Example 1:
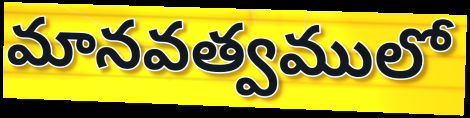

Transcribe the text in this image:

మానవత్వములో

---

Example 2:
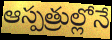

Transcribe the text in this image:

ఆస్పత్రుల్లోనే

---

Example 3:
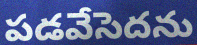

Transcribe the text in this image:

పడవేసెదను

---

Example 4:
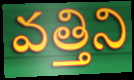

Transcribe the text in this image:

వత్తిని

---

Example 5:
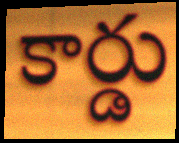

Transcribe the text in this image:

కార్డు